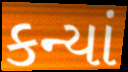
કન્યાં